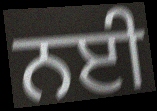
ਨਈ